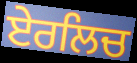
ਏਰਲਿਚ